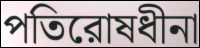
পতিরোষধীনা